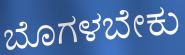
ಬೊಗಳಬೇಕು